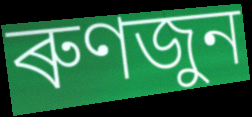
ৰুণজুন